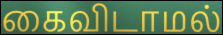
கைவிடாமல்